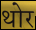
थोर